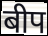
बीप